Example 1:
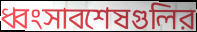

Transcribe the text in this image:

ধ্বংসাবশেষগুলির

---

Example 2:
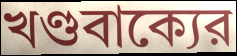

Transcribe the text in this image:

খণ্ডবাক্যের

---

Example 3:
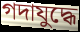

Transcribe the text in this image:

গদাযুদ্ধে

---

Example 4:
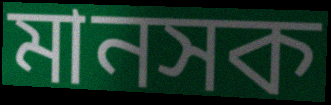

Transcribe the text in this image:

মানসক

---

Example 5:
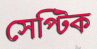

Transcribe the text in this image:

সেপ্টিক